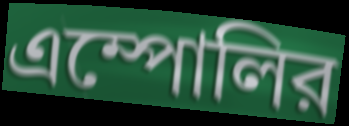
এম্পোলির